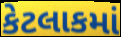
કેટલાકમાં